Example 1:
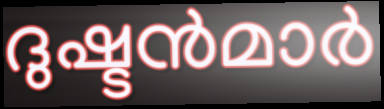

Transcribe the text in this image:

ദുഷ്ടൻമാർ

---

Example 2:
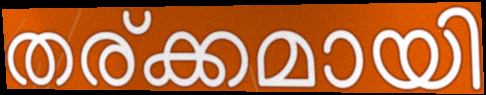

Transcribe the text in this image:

തര്ക്കമായി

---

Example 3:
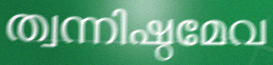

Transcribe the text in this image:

ത്വന്നിഷ്ഠമേവ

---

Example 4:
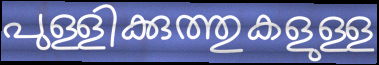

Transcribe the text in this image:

പുള്ളിക്കുത്തുകളുള്ള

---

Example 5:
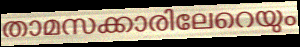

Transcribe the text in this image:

താമസക്കാരിലേറെയും